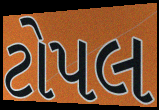
ટોપલ